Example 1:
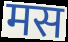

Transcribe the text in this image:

मस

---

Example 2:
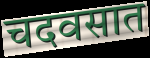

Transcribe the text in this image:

चदवसात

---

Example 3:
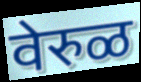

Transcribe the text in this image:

वेरुळ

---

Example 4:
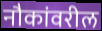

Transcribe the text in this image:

नौकांवरील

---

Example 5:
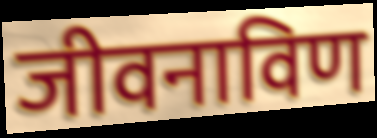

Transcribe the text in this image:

जीवनाविण